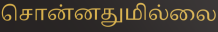
சொன்னதுமில்லை